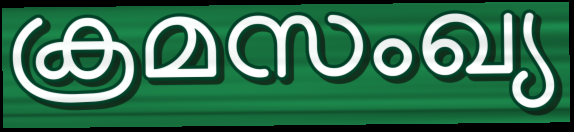
ക്രമസംഖ്യ